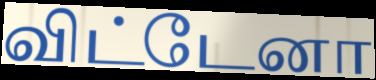
விட்டேனா